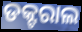
ଡକ୍ଟରାଲ